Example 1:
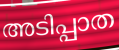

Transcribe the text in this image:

അടിപ്പാത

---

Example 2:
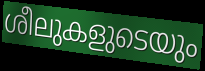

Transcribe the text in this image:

ശീലുകളുടെയും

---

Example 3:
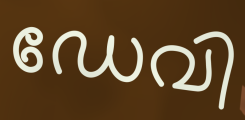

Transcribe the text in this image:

ഡേവി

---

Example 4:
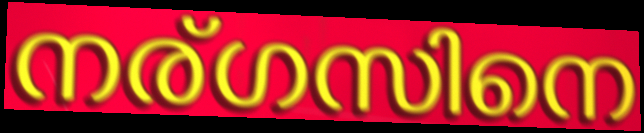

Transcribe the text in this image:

നര്ഗസിനെ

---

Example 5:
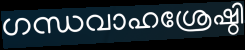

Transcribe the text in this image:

ഗന്ധവാഹശ്രേഷ്ഠി